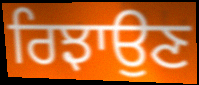
ਰਿਝਾਉਣ